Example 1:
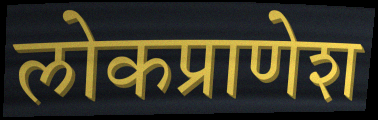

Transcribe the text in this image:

लोकप्राणेश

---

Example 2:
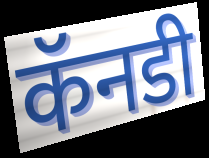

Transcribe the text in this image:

कॅनडी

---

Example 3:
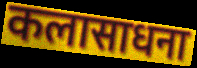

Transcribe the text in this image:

कलासाधना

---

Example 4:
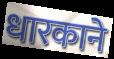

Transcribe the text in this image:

धारकाने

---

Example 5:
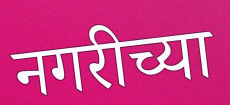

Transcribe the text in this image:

नगरीच्या